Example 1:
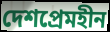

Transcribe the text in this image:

দেশপ্ৰেমহীন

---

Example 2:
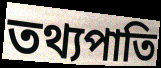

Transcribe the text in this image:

তথ্যপাতি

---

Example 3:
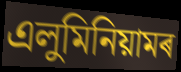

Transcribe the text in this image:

এলুমিনিয়ামৰ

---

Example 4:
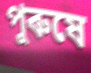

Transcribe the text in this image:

পুৰুষে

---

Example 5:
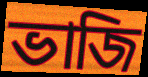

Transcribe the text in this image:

ভাজি